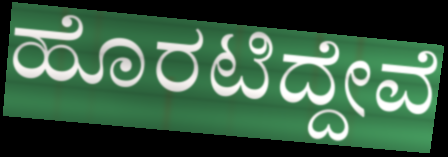
ಹೊರಟಿದ್ದೇವೆ